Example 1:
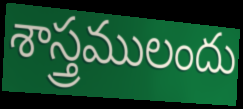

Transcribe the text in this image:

శాస్త్రములందు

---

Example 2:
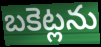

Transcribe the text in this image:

బకెట్లను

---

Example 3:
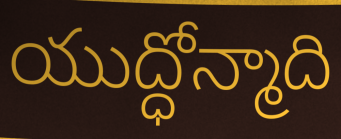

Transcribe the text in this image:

యుద్ధోన్మాది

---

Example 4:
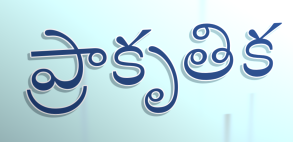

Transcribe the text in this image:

ప్రాకృతిక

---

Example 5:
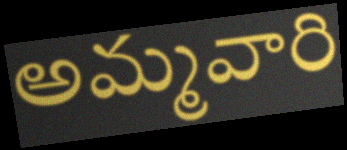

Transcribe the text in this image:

అమ్మవారి